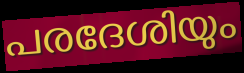
പരദേശിയും